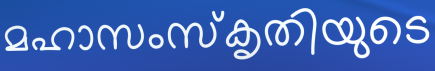
മഹാസംസ്കൃതിയുടെ